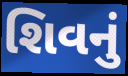
શિવનું